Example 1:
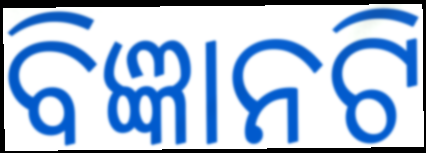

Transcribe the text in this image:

ବିଜ୍ଞାନଟି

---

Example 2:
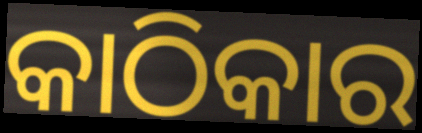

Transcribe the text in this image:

କାଠିକାର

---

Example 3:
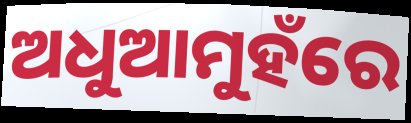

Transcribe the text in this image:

ଅଧୁଆମୁହଁରେ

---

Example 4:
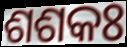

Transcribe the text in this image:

ଶଶକଃ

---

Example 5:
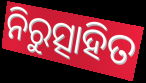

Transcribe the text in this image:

ନିରୁତ୍ସାହିତ